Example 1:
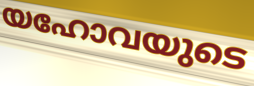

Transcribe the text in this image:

യഹോവയുടെ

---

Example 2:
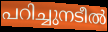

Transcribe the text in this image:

പറിച്ചുനടീൽ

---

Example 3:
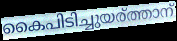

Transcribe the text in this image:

കൈപിടിച്ചുയര്ത്താന്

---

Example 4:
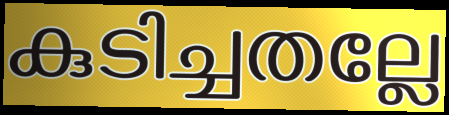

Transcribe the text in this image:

കുടിച്ചതല്ലേ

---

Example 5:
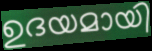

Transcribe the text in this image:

ഉദയമായി